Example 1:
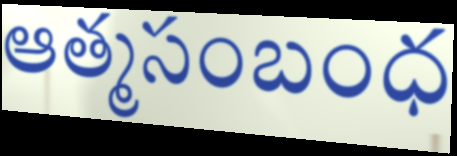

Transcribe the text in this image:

ఆత్మసంబంధ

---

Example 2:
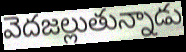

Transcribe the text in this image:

వెదజల్లుతున్నాడు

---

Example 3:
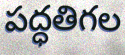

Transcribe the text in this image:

పద్ధతిగల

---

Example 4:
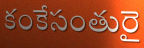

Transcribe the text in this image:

కంకేసంతురై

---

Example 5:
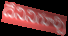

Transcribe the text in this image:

దేనినిగూర్చి